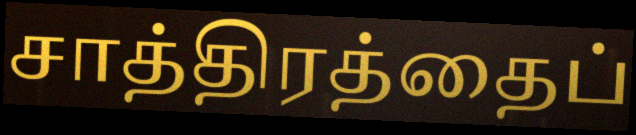
சாத்திரத்தைப்